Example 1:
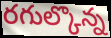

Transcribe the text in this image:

రగుల్కొన్న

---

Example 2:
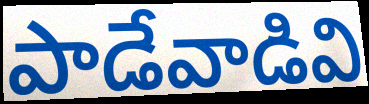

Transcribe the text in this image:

పాడేవాడివి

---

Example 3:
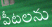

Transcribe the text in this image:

పీటలను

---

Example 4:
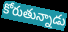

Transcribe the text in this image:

కోరుతున్నాడు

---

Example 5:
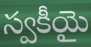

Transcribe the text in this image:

స్వకీయై